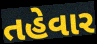
તહેવાર